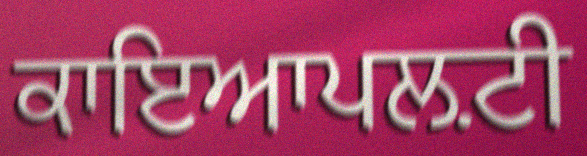
ਕਾਇਆਪਲ਼ਟੀ